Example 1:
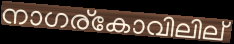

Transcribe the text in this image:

നാഗര്കോവിലില്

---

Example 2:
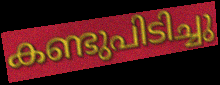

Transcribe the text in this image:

കണ്ടുപിടിച്ചു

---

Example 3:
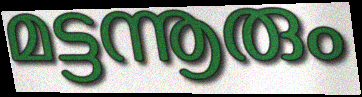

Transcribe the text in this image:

മട്ടന്നൂരും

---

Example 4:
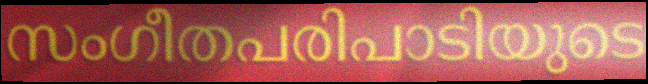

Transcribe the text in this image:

സംഗീതപരിപാടിയുടെ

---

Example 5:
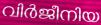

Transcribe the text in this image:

വിർജീനിയ